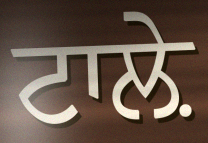
ਟਾਲ਼ੇ